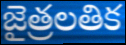
జైత్రలతిక